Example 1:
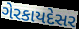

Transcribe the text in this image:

ગેરકાયદેસર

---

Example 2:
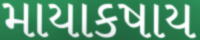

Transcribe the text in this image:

માયાકષાય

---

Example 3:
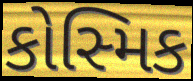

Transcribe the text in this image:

કોસ્મિક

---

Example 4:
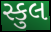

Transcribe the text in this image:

સ્કુલ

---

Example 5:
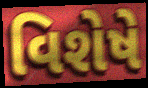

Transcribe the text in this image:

વિશેષે